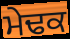
ਮੇਢਕ